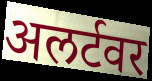
अलर्टवर